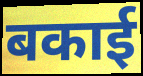
बकाई